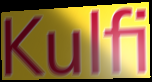
Kulfi